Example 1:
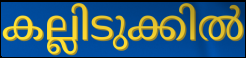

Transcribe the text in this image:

കല്ലിടുക്കിൽ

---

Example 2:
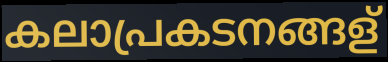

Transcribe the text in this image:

കലാപ്രകടനങ്ങള്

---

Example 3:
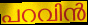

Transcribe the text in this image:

പറവിൻ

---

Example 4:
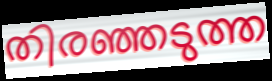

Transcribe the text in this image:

തിരഞ്ഞടുത്ത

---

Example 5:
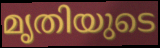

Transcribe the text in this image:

മൃതിയുടെ